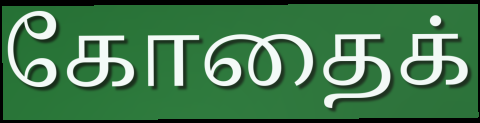
கோதைக்